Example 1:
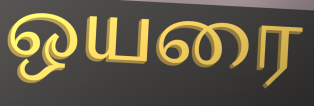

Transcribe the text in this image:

ஒயரை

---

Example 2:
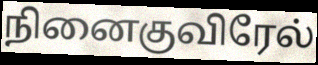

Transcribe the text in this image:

நினைகுவிரேல்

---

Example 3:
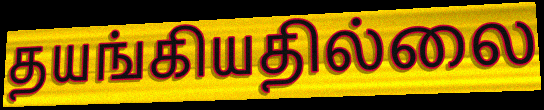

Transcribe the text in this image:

தயங்கியதில்லை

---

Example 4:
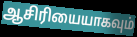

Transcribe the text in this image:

ஆசிரியையாகவும்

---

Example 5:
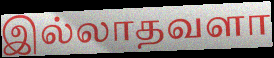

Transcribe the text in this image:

இல்லாதவளா